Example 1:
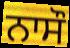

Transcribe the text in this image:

ਨਾਸੌ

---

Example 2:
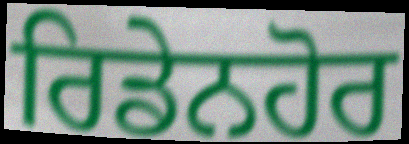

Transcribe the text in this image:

ਰਿਡੇਨਹੋਰ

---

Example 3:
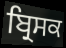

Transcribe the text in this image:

ਬ੍ਰਿਸਕ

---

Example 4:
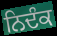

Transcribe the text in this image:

ਨਿਦੰਕ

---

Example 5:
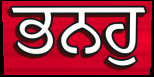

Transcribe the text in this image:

ਭਨਹੁ